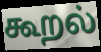
கூறல்